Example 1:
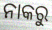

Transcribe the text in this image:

ନାକରୁ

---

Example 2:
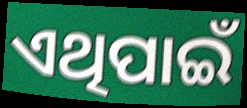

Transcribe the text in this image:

ଏଥିପାଇଁ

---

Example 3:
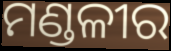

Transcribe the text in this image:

ମଣ୍ଡଳୀର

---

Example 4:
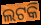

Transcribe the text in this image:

ଲଟକି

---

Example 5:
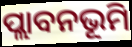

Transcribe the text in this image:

ପ୍ଲାବନଭୂମି